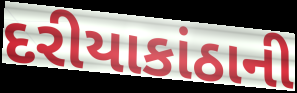
દરીયાકાંઠાની